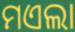
ମଏଲା